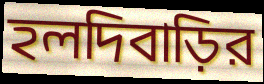
হলদিবাড়ির